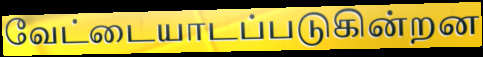
வேட்டையாடப்படுகின்றன